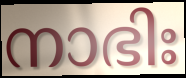
നാഭിഃ